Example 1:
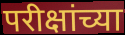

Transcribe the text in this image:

परीक्षांच्या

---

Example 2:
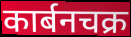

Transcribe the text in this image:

कार्बनचक्र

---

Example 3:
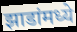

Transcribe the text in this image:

झाडांमध्ये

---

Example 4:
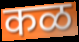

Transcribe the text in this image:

कळ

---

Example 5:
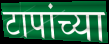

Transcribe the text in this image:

टापांच्या